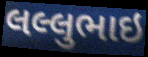
લલ્લુભાઇ